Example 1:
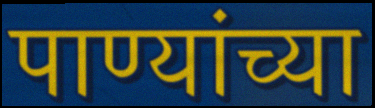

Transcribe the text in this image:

पाण्यांच्या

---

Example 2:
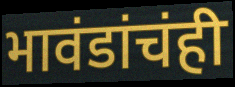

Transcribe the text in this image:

भावंडांचंही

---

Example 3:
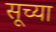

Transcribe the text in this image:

सूच्या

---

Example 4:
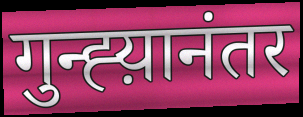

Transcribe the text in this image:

गुन्ह्य़ानंतर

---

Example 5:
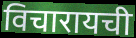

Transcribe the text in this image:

विचारायची